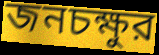
জনচক্ষুর